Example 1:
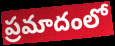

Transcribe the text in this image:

ప్రమాదంలో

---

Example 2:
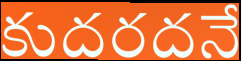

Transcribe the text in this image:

కుదరదనే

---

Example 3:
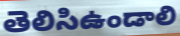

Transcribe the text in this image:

తెలిసిఉండాలి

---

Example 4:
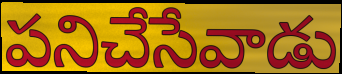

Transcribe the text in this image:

పనిచేసేవాడు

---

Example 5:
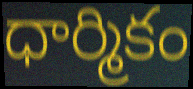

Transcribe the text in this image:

ధార్మికం